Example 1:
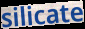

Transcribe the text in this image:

silicate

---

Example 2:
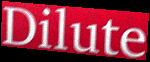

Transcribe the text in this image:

Dilute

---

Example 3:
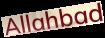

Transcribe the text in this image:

Allahbad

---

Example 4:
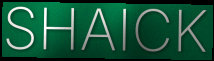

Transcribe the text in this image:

SHAICK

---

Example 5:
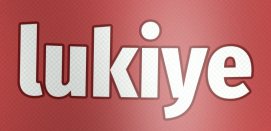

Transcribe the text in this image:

lukiye